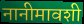
नानीमावशी